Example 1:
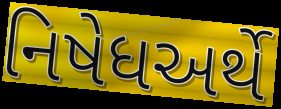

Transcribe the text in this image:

નિષેધઅર્થે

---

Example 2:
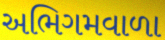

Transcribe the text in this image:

અભિગમવાળા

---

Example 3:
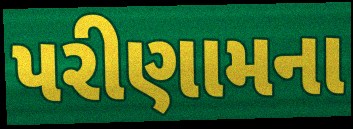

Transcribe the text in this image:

પરીણામના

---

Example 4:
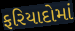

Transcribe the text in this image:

ફરિયાદોમાં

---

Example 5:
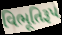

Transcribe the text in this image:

વિભૂતિરૂપ